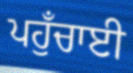
ਪਹੁਁਚਾਈ